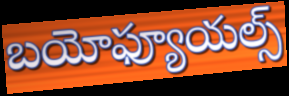
బయోఫ్యూయల్స్